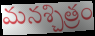
మనశ్చిత్రం